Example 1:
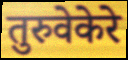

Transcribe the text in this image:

तुरुवेकेरे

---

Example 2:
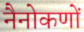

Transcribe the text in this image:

नैनोकणों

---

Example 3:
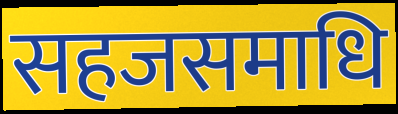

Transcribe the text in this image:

सहजसमाधि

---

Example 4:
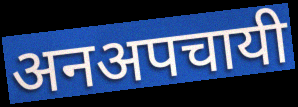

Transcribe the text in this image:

अनअपचायी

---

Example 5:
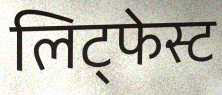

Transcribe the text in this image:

लिट्फेस्ट